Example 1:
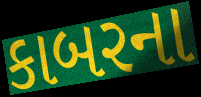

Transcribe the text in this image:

કાબરના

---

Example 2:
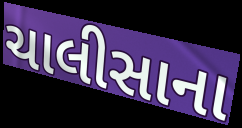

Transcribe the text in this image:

ચાલીસાના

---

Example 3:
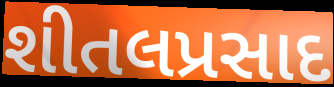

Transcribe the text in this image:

શીતલપ્રસાદ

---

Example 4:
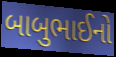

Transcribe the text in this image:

બાબુભાઈનો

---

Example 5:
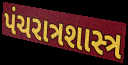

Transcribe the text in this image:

પંચરાત્રશાસ્ત્ર